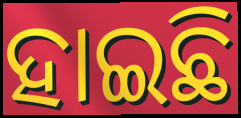
ହାଇଛି